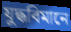
যুদ্ধবিমানে